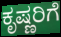
ಕೃಷ್ಣರಿಗೆ